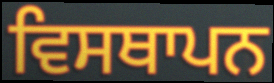
ਵਿਸਥਾਪਨ